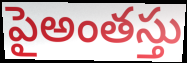
పైఅంతస్తు